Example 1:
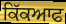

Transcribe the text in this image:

ਕਿੱਕਆਫ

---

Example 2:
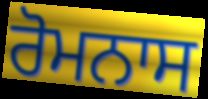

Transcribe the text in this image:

ਰੋਮਨਾਸ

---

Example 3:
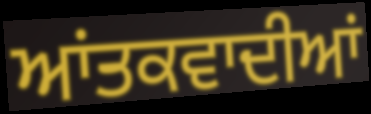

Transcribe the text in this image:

ਆਂਤਕਵਾਦੀਆਂ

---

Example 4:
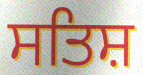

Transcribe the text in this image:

ਸਤਿਸ਼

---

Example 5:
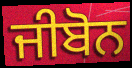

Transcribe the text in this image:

ਜੀਬੋਨ